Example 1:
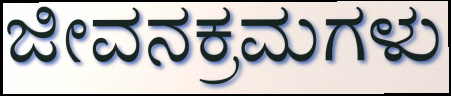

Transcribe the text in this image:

ಜೀವನಕ್ರಮಗಳು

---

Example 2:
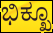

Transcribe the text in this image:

ಭಿಕ್ಖೂ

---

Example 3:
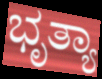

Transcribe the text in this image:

ಭೃತ್ಯಾ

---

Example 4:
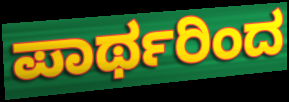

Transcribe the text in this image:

ಪಾರ್ಥರಿಂದ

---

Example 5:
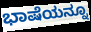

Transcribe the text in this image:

ಭಾಷೆಯನ್ನೂ